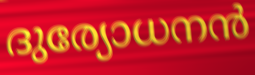
ദുര്യോധനൻ